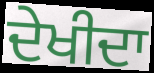
ਦੇਖੀਦਾ